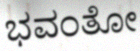
ಭವಂತೋ